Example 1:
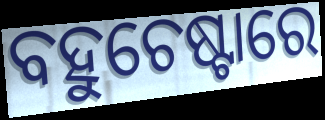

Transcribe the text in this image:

ବହୁଚେଷ୍ଟାରେ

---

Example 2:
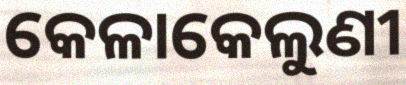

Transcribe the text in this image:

କେଳାକେଲୁଣୀ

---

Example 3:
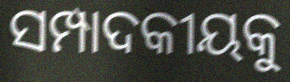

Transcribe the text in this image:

ସମ୍ପାଦକୀୟକୁ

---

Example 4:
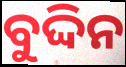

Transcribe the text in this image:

ବୁଦ୍ଦିନ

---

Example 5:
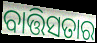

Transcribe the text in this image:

ବାତ୍ତିସତାର